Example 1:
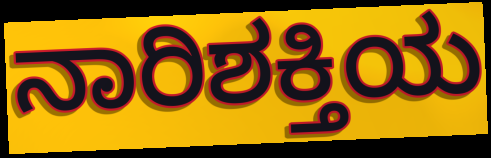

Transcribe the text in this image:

ನಾರಿಶಕ್ತಿಯ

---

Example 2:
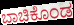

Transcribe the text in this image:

ಬಾಚಿಕೊಂಡ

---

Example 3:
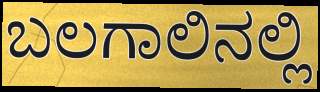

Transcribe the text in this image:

ಬಲಗಾಲಿನಲ್ಲಿ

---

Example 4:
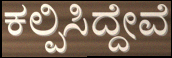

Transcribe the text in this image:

ಕಲ್ಪಿಸಿದ್ದೇವೆ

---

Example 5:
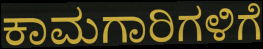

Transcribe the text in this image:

ಕಾಮಗಾರಿಗಳಿಗೆ